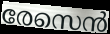
രേസെൻ